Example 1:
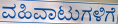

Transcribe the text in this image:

ವಹಿವಾಟುಗಳಿಗೆ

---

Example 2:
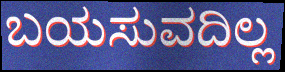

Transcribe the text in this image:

ಬಯಸುವದಿಲ್ಲ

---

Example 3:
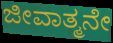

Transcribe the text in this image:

ಜೀವಾತ್ಮನೇ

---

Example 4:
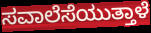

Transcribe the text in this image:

ಸವಾಲೆಸೆಯುತ್ತಾಳೆ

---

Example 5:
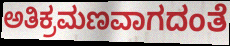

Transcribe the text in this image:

ಅತಿಕ್ರಮಣವಾಗದಂತೆ